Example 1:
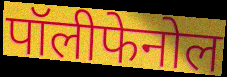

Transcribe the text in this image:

पॉलीफेनोल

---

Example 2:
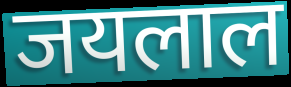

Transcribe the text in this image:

जयलाल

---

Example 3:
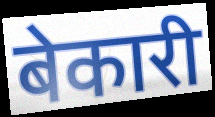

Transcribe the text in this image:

बेकारी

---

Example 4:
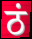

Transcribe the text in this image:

ठं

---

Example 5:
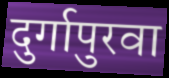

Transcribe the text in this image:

दुर्गापुरवा